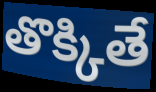
తొక్కితే